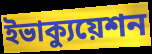
ইভাক্যুয়েশন